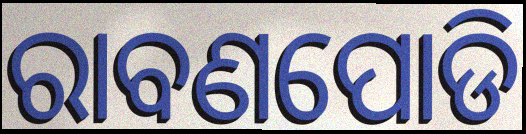
ରାବଣପୋଡି